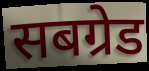
सबग्रेड